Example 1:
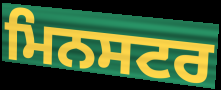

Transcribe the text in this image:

ਮਿਨਸਟਰ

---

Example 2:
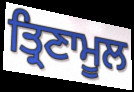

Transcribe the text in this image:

ਤ੍ਰਿਣਾਮੂਲ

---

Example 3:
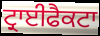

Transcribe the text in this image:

ਟ੍ਰਾਈਫੈਕਟਾ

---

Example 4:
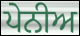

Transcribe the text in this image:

ਪੇਨੀਅ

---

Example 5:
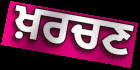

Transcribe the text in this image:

ਖ਼ਰਚਣ